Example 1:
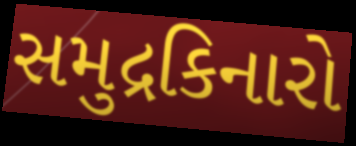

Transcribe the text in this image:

સમુદ્રકિનારો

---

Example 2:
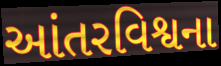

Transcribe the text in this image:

આંતરવિશ્વના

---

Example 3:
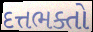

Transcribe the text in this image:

દત્તભક્તો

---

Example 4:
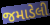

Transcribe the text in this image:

જમાડેલી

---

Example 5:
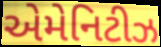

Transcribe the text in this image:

એમેનિટીઝ